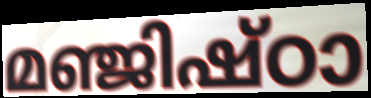
മഞ്ജിഷ്ഠാ